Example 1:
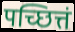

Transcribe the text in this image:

पच्छित्तं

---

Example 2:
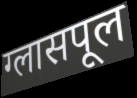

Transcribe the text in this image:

ग्लासपूल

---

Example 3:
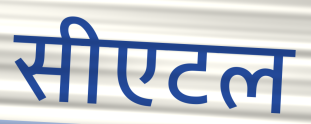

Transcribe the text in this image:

सीएटल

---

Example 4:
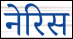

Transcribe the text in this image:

नेरिस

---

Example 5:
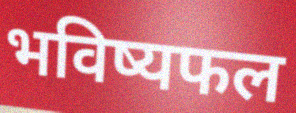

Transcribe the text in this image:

भविष्यफल